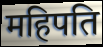
महिपति